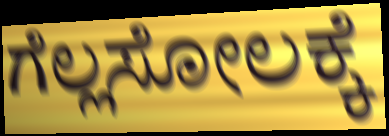
ಗೆಲ್ಲಸೋಲಕ್ಕೆ